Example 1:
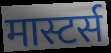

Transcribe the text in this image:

मास्टर्स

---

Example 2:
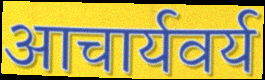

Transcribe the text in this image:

आचार्यवर्य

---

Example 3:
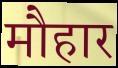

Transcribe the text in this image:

मौहार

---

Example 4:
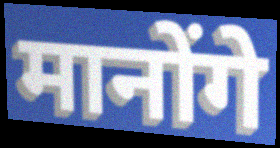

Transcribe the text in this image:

मानोंगे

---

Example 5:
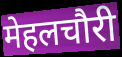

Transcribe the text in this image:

मेहलचौरी